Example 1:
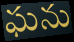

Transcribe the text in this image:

ఘను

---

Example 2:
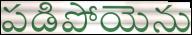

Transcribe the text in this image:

పడిపోయెను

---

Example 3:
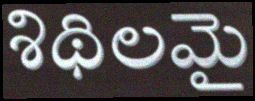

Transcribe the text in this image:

శిథిలమై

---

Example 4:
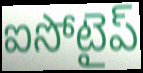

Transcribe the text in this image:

ఐసోటైప్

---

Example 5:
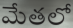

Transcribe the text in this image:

మేతలో